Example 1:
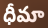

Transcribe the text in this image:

ధీమా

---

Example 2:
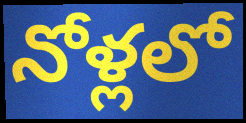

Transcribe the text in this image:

నోళ్లలో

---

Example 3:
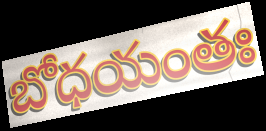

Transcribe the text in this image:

బోధయంతః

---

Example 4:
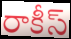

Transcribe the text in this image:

రాకీస్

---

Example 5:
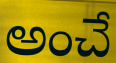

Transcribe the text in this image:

అంచే